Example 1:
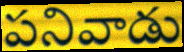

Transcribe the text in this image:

పనివాడు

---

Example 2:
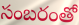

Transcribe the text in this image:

సంబరంతో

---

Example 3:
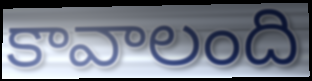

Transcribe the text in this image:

కావాలంది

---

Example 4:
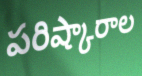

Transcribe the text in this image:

పరిష్కారాల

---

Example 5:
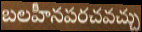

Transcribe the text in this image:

బలహీనపరచవచ్చు